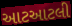
આટઆટલી